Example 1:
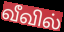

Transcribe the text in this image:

வீவில்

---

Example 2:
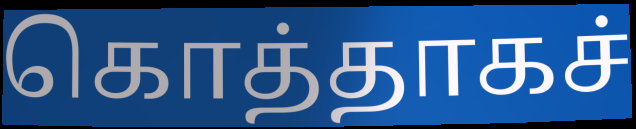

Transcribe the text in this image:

கொத்தாகச்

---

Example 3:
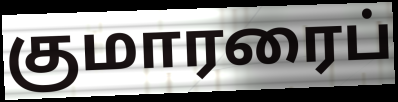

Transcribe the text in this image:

குமாரரைப்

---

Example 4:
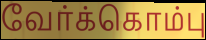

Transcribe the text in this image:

வேர்க்கொம்பு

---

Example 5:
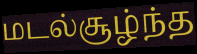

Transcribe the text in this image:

மடல்சூழ்ந்த